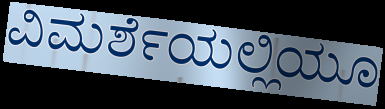
ವಿಮರ್ಶೆಯಲ್ಲಿಯೂ